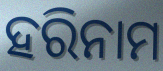
ହରିନାମ